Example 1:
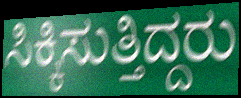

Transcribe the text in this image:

ಸಿಕ್ಕಿಸುತ್ತಿದ್ದರು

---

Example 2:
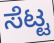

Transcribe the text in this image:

ಸೆಟ್ಟ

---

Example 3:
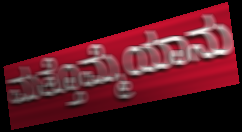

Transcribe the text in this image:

ಮತ್ತೊಮ್ಮೆಯಾನು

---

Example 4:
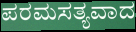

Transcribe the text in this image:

ಪರಮಸತ್ಯವಾದ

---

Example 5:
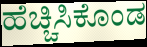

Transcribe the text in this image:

ಹೆಚ್ಚಿಸಿಕೊಂಡ